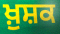
ਖ਼ੁਸ਼ਕ